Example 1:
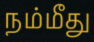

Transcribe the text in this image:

நம்மீது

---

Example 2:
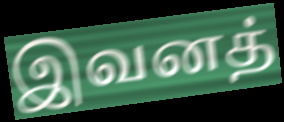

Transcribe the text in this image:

இவனத்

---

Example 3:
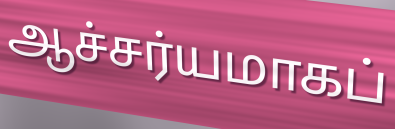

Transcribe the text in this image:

ஆச்சர்யமாகப்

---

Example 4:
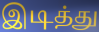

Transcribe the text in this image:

இடித்து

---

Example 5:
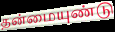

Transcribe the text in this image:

தன்மையுண்டு